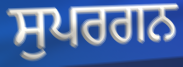
ਸੁਪਰਗਨ